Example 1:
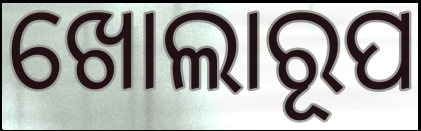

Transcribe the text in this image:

ଖୋଲାରୂପ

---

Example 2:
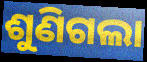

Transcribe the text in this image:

ଶୁଣିଗଲା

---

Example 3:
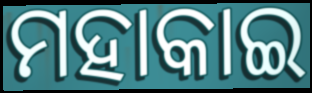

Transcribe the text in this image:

ମହାକାଇ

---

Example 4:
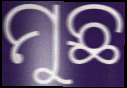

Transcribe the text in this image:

ମୁଛ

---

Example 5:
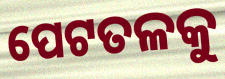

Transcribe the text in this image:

ପେଟତଳକୁ